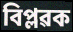
বিপ্লৱক